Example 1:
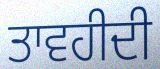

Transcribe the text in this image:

ਤਾਵਹੀਦੀ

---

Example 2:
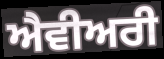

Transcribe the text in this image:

ਐਵੀਅਰੀ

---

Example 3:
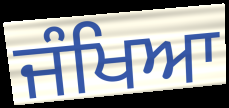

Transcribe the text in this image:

ਜੰਖਿਆ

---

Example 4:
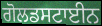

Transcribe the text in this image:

ਗੋਲਡਸਟਾਈਨ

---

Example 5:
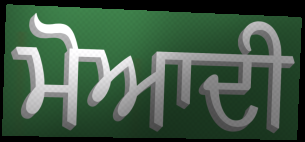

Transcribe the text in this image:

ਮੋਆਦੀ